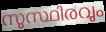
സുസ്ഥിരവും